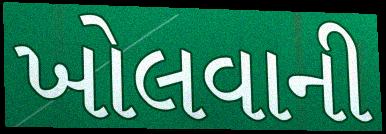
ખોલવાની